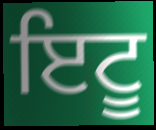
ਇਟੂ